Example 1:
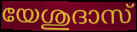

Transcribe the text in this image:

യേശുദാസ്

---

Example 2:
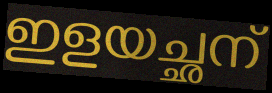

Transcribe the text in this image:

ഇളയച്ഛന്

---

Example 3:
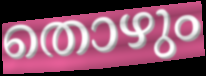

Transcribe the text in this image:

തൊഴും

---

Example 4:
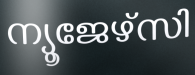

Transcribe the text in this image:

ന്യൂജേഴ്സി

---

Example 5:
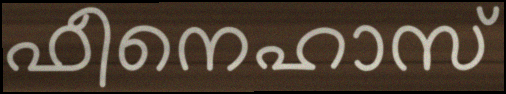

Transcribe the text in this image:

ഫീനെഹാസ്